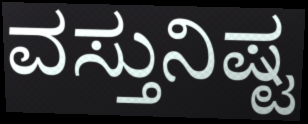
ವಸ್ತುನಿಷ್ಟ